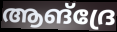
ആങ്ദ്രേ